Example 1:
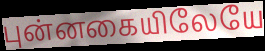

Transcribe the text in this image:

புன்னகையிலேயே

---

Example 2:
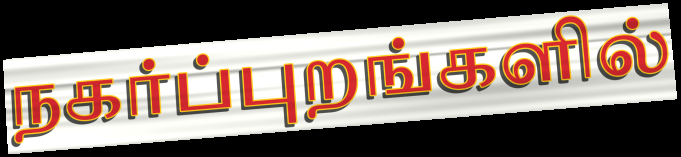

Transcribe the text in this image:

நகர்ப்புறங்களில்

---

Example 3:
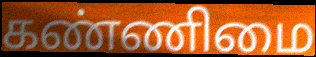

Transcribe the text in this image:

கண்ணிமை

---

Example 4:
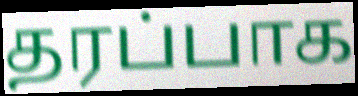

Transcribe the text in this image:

தரப்பாக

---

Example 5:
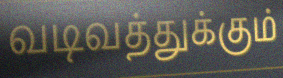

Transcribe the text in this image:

வடிவத்துக்கும்